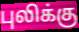
புலிக்கு